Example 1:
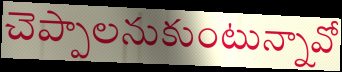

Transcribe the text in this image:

చెప్పాలనుకుంటున్నావో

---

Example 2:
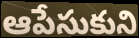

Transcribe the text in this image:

ఆపేసుకుని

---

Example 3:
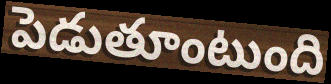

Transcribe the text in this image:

పెడుతూంటుంది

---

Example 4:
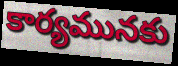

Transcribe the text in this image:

కార్యమునకు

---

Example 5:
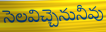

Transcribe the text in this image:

సెలవిచ్చెనునీవు